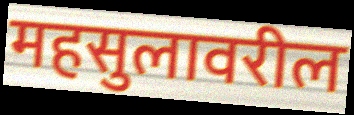
महसुलावरील